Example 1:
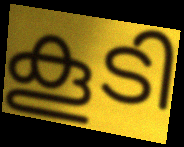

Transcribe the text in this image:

കൂടി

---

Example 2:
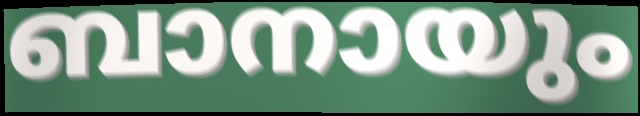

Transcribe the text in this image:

ബാനായും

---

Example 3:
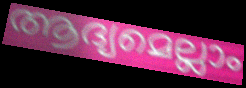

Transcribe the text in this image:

ആദ്യമെല്ലാം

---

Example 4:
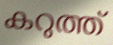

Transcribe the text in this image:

കറുത്ത്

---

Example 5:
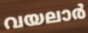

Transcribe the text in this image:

വയലാർ